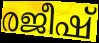
രജീഷ്